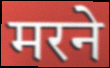
मरने